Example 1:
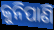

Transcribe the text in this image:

କୁନିପାଣି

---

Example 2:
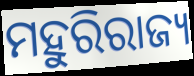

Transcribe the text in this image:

ମହୁରିରାଜ୍ୟ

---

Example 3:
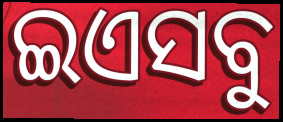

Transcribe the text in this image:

ଇଏସବୁ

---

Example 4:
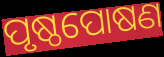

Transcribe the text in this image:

ପୃଷ୍ଠପୋଷଣ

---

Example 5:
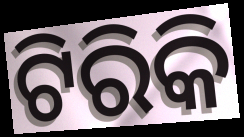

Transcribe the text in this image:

ଟିରିକି